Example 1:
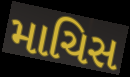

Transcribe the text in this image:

માચિસ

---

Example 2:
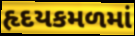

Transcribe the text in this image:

હૃદયકમળમાં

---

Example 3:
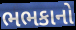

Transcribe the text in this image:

ભભકાનો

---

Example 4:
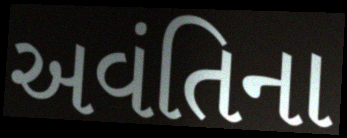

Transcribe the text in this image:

અવંતિના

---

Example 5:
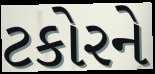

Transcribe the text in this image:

ટકોરને